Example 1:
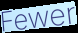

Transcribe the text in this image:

Fewer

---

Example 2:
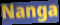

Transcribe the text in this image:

Nanga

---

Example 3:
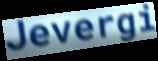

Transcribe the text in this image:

Jevergi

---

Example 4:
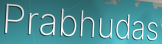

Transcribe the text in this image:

Prabhudas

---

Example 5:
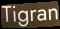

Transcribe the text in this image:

Tigran